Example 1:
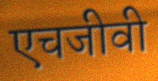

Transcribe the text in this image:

एचजीवी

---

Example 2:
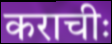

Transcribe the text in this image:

कराचीः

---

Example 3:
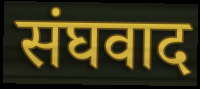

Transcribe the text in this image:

संघवाद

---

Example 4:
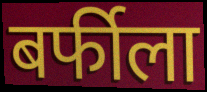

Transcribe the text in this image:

बर्फीला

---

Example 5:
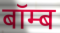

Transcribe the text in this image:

बॉम्ब